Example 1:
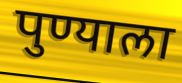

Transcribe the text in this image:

पुण्याला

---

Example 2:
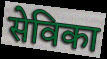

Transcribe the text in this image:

सेविका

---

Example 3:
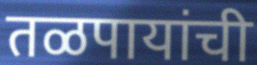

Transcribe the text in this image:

तळपायांची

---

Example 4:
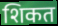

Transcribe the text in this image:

शिकत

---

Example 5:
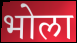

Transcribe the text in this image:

भोला